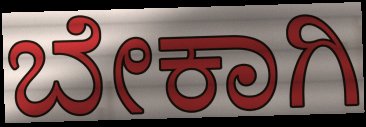
ಬೇಕಾಗಿ